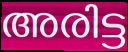
അരിട്ട